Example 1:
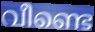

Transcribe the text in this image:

വീണ്ടെ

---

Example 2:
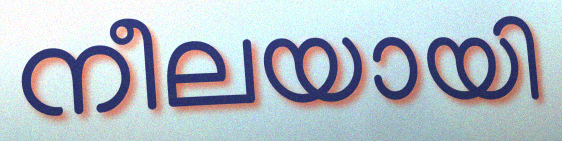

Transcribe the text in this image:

നീലയായി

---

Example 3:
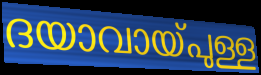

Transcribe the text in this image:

ദയാവായ്പുള്ള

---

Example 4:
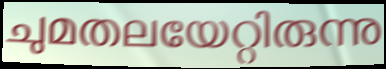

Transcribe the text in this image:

ചുമതലയേറ്റിരുന്നു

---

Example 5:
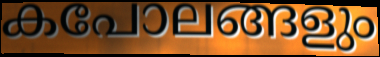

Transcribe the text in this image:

കപോലങ്ങളും